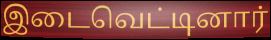
இடைவெட்டினார்